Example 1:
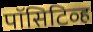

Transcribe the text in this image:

पॉसिटिव्ह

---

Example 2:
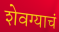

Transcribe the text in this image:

शेवग्याचं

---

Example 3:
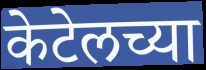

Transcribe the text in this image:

केटेलच्या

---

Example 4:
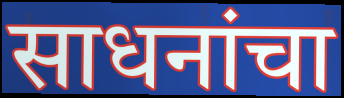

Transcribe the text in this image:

साधनांचा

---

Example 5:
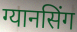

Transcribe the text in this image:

ग्यानसिंग